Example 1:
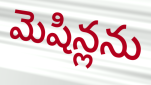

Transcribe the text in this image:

మెషిన్లను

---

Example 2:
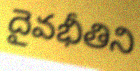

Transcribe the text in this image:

దైవభీతిని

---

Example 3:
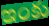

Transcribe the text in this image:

ఇంకు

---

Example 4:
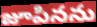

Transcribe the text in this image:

జూపినను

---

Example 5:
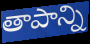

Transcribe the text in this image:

తాపాన్ని